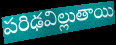
పరిఢవిల్లుతాయి